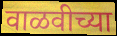
वाळवीच्या